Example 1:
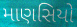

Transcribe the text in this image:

માણસિયો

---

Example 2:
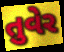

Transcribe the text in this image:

તુવેર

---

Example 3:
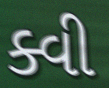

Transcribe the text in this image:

ક્વી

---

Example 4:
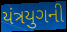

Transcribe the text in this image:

યંત્રયુગની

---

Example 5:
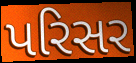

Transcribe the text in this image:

પરિસર